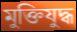
মুক্তিযুদ্ধ